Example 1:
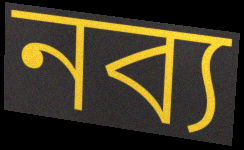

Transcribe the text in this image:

নব্য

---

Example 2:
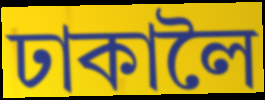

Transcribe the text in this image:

ঢাকালৈ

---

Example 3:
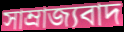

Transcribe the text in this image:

সাম্ৰাজ্যবাদ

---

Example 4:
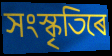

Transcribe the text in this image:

সংস্কৃতিৰে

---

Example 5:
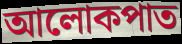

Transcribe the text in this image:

আলোকপাত